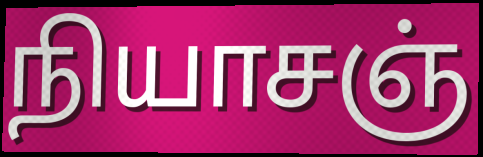
நியாசஞ்